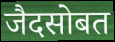
जैदसोबत